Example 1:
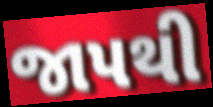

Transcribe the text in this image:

જાપથી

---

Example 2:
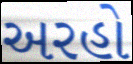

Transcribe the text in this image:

અરહો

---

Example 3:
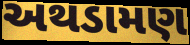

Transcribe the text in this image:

અથડામણ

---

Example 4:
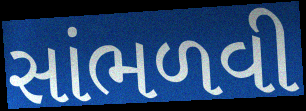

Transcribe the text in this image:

સાંભળવી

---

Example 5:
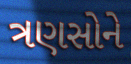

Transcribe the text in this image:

ત્રણસોને